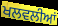
ਖਲਵਲੀਆਂ